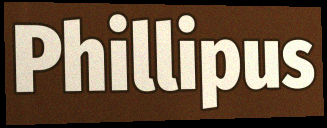
Phillipus